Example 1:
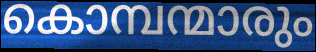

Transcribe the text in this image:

കൊമ്പന്മാരും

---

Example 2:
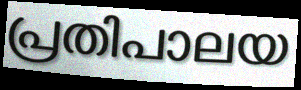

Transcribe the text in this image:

പ്രതിപാലയ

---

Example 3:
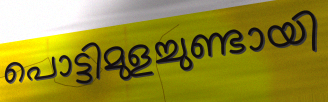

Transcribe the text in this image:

പൊട്ടിമുളച്ചുണ്ടായി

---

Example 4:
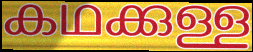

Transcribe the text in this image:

കഥക്കുള്ള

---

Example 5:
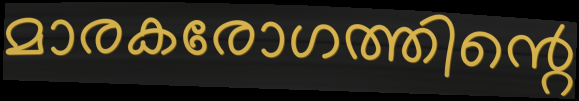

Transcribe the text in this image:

മാരകരോഗത്തിന്റെ